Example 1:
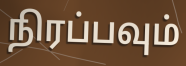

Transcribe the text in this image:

நிரப்பவும்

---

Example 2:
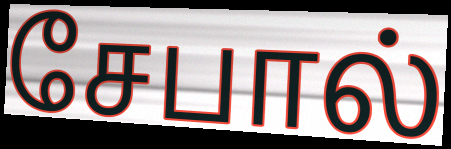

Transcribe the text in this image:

சேபால்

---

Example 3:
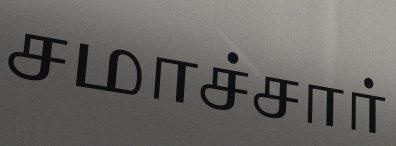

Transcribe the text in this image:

சமாச்சார்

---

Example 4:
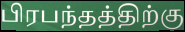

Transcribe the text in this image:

பிரபந்தத்திற்கு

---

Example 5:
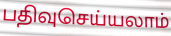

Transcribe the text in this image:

பதிவுசெய்யலாம்